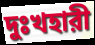
দুঃখহারী